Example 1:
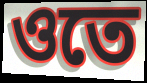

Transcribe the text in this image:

ওতে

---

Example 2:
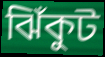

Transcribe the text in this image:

ঝিঁকুট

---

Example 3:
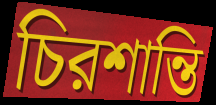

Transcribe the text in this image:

চিরশান্তি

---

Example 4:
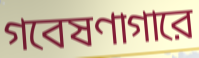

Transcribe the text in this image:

গবেষণাগারে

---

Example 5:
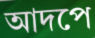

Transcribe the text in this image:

আদপে